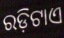
ରଡ଼ିଟାଏ